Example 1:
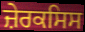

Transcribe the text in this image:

ਜ਼ੇਰਕਸਿਸ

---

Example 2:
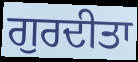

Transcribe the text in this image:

ਗੁਰਦੀਤਾ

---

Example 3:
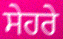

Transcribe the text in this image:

ਸੇਹਰੇ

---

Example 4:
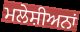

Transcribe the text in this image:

ਮਲੇਸ਼ੀਅਨਾਂ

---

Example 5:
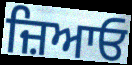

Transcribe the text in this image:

ਜ਼ਿਆਓ